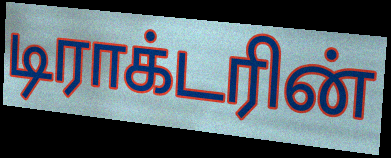
டிராக்டரின்